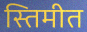
स्तिमीत